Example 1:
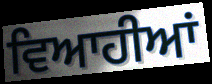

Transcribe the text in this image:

ਵਿਆਹੀਆਂ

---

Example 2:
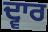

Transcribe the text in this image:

ਦ੍ਵਾਰ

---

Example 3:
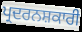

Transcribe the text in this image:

ਪ੍ਰਦਰਨਸ਼ਕਾਰੀ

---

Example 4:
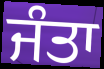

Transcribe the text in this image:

ਜੰਤਾ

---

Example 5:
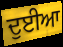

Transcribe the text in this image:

ਦੁਈਆ